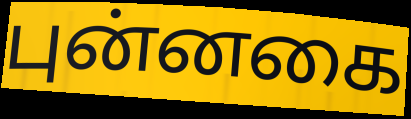
புன்னகை